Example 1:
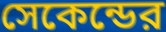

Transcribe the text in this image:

সেকেন্ডের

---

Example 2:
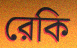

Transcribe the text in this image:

রেকি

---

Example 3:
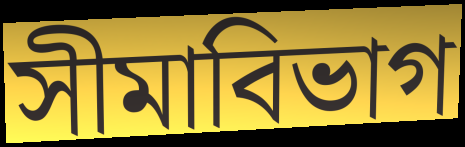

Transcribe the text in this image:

সীমাবিভাগ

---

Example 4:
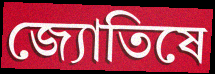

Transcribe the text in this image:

জ্যোতিষে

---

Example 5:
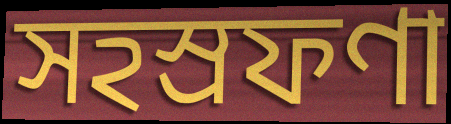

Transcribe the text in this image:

সহস্রফণা